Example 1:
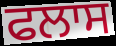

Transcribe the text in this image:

ਫਲਾਸ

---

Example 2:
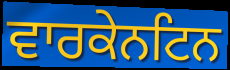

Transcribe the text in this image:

ਵਾਰਕੇਨਟਿਨ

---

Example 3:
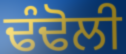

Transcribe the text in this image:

ਢੰਢੋਲੀ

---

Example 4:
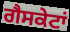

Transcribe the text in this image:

ਗੈਸਕੇਟਾਂ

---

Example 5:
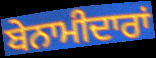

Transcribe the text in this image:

ਬੇਨਾਮੀਦਾਰਾਂ